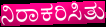
ನಿರಾಕರಿಸಿತು